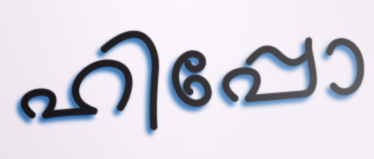
ഹിപ്പോ